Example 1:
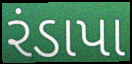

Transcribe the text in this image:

રંડાપા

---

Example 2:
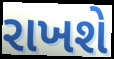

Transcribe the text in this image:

રાખશે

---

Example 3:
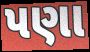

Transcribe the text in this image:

પણા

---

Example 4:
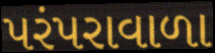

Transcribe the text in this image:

પરંપરાવાળા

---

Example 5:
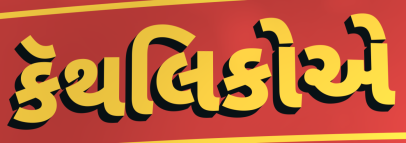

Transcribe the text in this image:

કૅથલિકોએ